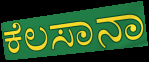
ಕೆಲಸಾನಾ